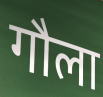
गौला